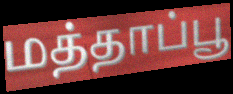
மத்தாப்பூ